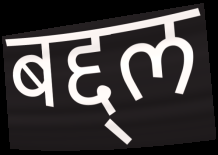
बद्द्ल